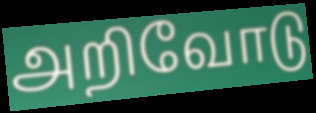
அறிவோடு